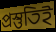
প্রস্তুতিই